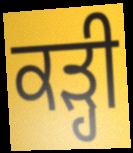
ਕੜ੍ਹੀ